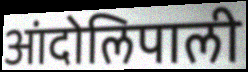
आंदोलिपाली